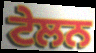
ਟੇਲਨ